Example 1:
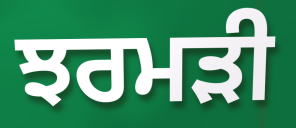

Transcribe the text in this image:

ਝਰਮੜੀ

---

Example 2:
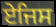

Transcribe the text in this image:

ਏਜਿਸ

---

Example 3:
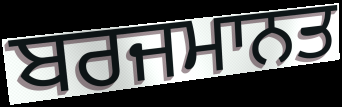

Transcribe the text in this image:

ਬਰਜਮਾਨਤ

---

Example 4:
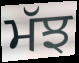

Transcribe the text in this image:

ਮੱਝ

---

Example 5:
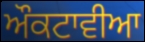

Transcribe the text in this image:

ਔਕਟਾਵੀਆ